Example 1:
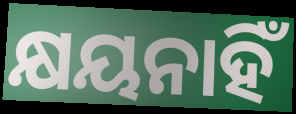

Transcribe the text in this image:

କ୍ଷୟନାହିଁ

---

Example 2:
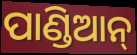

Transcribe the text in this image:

ପାଣ୍ଡିଆନ୍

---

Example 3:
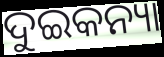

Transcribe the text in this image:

ଦୁଇକନ୍ୟା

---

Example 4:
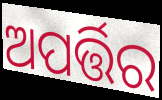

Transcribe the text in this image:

ଅପର୍ତ୍ତିର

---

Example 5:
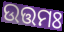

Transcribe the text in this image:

ଉତ୍ତମଃ